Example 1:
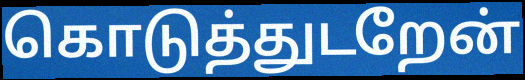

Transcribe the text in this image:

கொடுத்துடறேன்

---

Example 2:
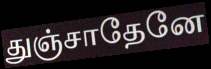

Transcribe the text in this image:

துஞ்சாதேனே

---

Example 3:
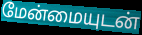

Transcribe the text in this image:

மேன்மையுடன்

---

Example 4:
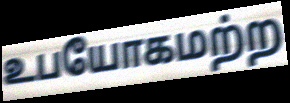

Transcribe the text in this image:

உபயோகமற்ற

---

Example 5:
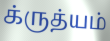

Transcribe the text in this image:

க்ருத்யம்